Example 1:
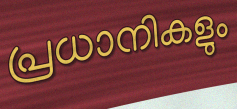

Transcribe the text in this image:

പ്രധാനികളും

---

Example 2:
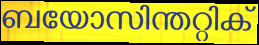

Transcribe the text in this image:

ബയോസിന്തറ്റിക്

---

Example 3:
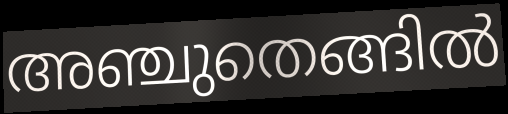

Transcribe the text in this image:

അഞ്ചുതെങ്ങിൽ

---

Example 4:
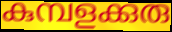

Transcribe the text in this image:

കുമ്പളക്കുരു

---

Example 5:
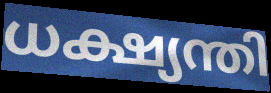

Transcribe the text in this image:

ധക്ഷ്യന്തി